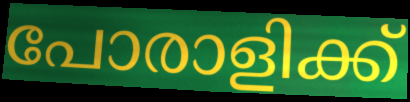
പോരാളിക്ക്